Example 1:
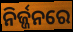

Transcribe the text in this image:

ନିର୍ଜ୍ଜନରେ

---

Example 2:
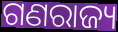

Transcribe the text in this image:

ଗଣରାଜ୍ୟ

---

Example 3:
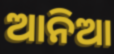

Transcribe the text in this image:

ଆନିଆ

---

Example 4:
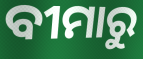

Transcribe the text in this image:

ବୀମାରୁ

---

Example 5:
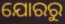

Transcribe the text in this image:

ଯୋରରୁ